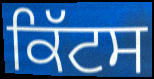
ਕਿੱਟਸ